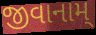
જીવાનામ્